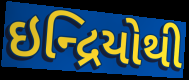
ઇન્દ્રિયોથી